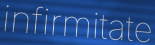
infirmitate